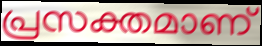
പ്രസക്തമാണ്